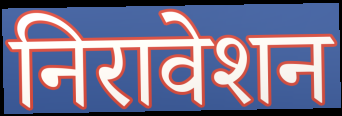
निरावेशन